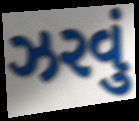
ઝરવું